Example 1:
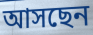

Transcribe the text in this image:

আসছেন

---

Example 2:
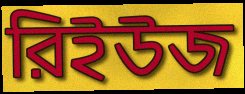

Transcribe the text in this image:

রিইউজ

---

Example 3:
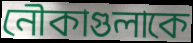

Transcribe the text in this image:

নৌকাগুলাকে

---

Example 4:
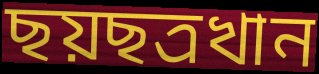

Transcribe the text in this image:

ছয়ছত্রখান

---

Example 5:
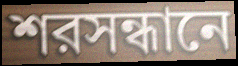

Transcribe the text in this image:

শরসন্ধানে